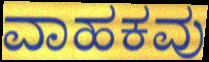
ವಾಹಕವು